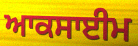
ਆਕਸਾਈਮ